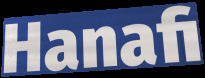
Hanafi